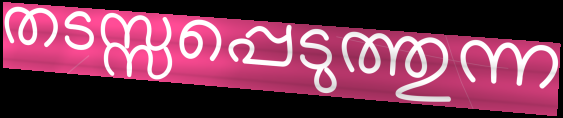
തടസ്സപ്പെടുത്തുന്ന